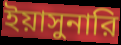
ইয়াসুনারি